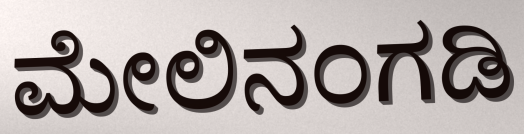
ಮೇಲಿನಂಗಡಿ